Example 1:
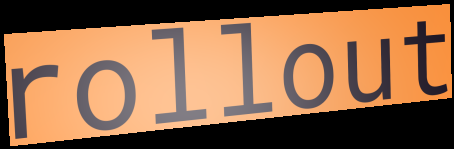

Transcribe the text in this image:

rollout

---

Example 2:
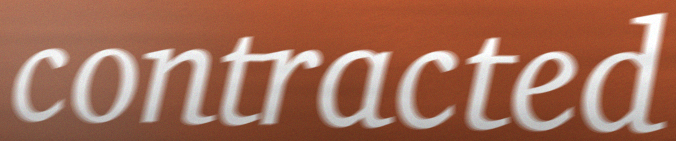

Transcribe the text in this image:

contracted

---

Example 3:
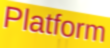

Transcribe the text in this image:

Platform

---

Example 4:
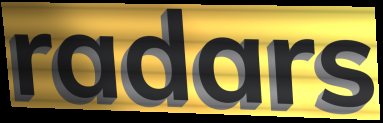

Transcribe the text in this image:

radars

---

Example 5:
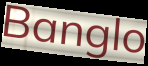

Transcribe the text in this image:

Banglo